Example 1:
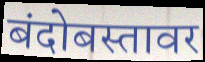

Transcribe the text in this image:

बंदोबस्तावर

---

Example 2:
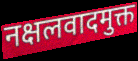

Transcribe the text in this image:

नक्षलवादमुक्त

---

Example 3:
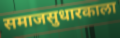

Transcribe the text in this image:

समाजसुधारकाला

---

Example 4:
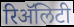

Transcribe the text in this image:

रिॲलिटी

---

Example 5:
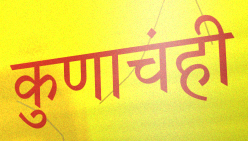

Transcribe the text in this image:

कुणाचंही